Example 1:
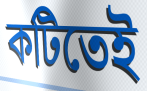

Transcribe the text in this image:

কটিতেই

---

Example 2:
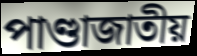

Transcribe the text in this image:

পাণ্ডাজাতীয়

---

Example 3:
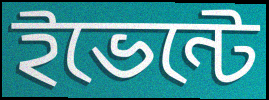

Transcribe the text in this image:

ইভেন্টে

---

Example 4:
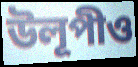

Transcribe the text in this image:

উলূপীও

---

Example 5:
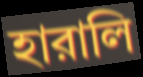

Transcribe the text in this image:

হারালি